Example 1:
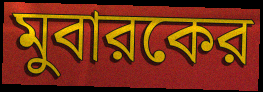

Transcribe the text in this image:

মুবারকের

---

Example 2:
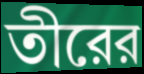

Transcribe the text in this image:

তীরের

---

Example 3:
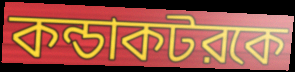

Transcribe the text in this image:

কন্ডাকটরকে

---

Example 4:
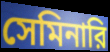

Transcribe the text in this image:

সেমিনারি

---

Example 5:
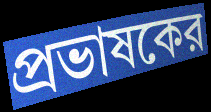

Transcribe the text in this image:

প্রভাষকের